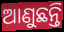
ଆଣୁଛନ୍ତି